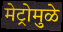
मेट्रोमुळे